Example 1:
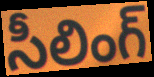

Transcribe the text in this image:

సీలింగ్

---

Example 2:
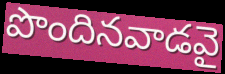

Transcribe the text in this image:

పొందినవాడవై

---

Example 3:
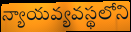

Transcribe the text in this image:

న్యాయవ్యవస్థలోని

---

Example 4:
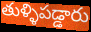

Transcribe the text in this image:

తుళ్ళిపడ్డారు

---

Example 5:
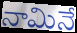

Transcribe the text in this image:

నామినే